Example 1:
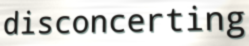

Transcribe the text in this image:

disconcerting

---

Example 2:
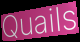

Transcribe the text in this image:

Quails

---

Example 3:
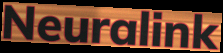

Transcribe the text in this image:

Neuralink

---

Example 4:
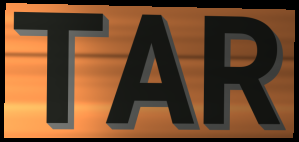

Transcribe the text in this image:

TAR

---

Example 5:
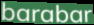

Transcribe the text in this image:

barabar